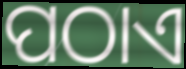
ପଠାଏ